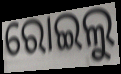
ରୋଇଲୁ